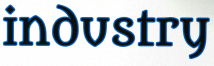
industry